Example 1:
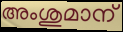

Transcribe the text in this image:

അംശുമാന്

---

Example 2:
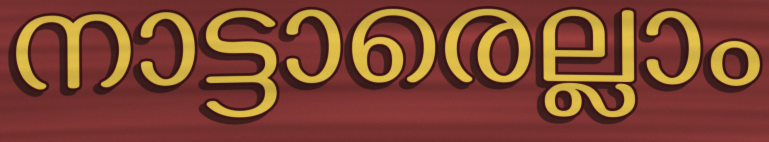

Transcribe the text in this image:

നാട്ടാരെല്ലാം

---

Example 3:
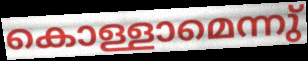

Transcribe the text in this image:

കൊള്ളാമെന്നു്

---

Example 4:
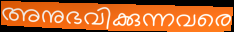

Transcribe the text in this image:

അനുഭവിക്കുന്നവരെ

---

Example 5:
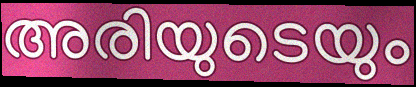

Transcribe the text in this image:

അരിയുടെയും